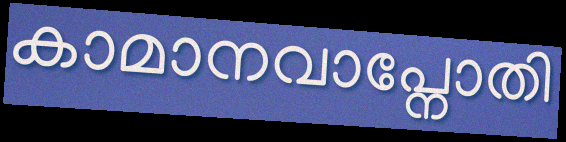
കാമാനവാപ്നോതി